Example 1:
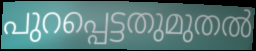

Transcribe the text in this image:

പുറപ്പെട്ടതുമുതൽ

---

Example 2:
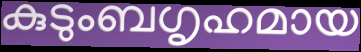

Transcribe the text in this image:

കുടുംബഗൃഹമായ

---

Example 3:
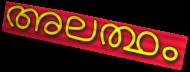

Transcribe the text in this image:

അലത്ഥം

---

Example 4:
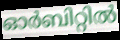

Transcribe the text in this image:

ഓർബിറ്റിൽ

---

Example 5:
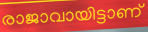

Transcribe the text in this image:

രാജാവായിട്ടാണ്